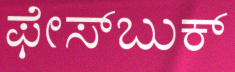
ಫೇಸ್‌ಬುಕ್